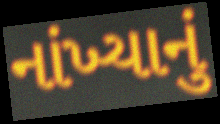
નાંખ્યાનું